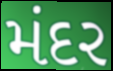
મંદર